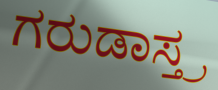
ಗರುಡಾಸ್ತ್ರ